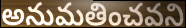
అనుమతించవని